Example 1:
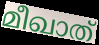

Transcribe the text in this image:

മീഖാത്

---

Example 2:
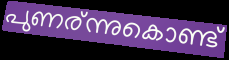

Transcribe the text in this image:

പുണര്ന്നുകൊണ്ട്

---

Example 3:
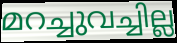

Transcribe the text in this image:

മറച്ചുവച്ചില്ല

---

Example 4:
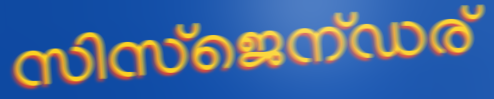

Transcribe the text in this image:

സിസ്ജെന്ഡര്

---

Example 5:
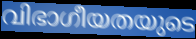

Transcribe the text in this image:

വിഭാഗീയതയുടെ